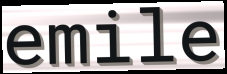
emile